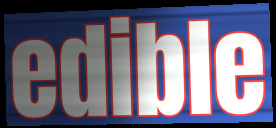
edible